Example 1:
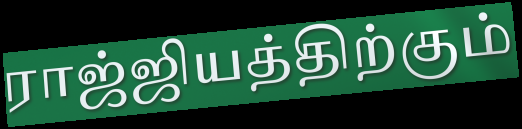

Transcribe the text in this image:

ராஜ்ஜியத்திற்கும்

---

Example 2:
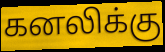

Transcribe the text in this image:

கனலிக்கு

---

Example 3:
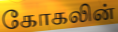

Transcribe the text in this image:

கோகலின்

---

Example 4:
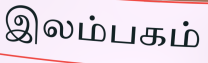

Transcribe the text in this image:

இலம்பகம்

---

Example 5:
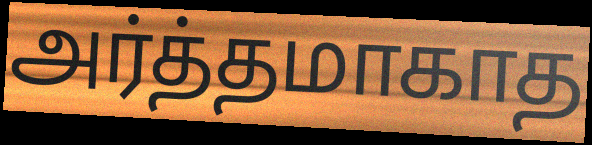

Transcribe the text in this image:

அர்த்தமாகாத